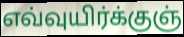
எவ்வுயிர்க்குஞ்